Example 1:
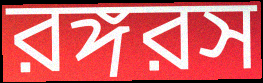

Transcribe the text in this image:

রঙ্গরস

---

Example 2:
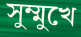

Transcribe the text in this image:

সুম্মুখে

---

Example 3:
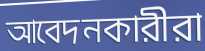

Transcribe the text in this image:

আবেদনকারীরা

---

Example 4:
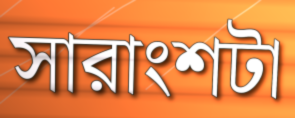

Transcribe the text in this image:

সারাংশটা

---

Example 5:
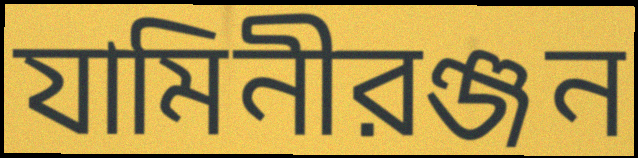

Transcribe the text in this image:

যামিনীরঞ্জন